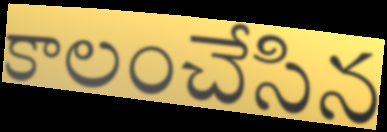
కాలంచేసిన